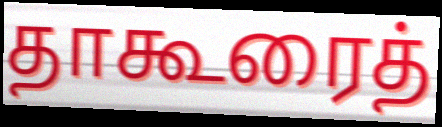
தாகூரைத்